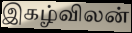
இகழ்விலன்